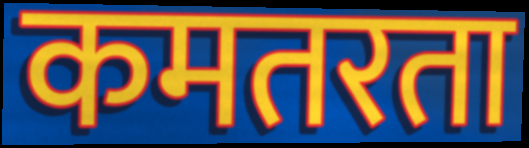
कमतरता